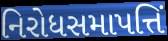
નિરોધસમાપત્તિં